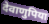
देवाणुपिया